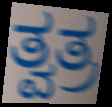
ತ್ವತ್ರ